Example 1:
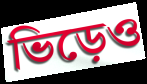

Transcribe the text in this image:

ভিড়েও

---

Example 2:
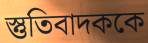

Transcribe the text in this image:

স্তুতিবাদককে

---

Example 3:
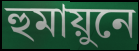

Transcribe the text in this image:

হুমায়ুনে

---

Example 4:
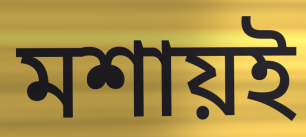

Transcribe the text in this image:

মশায়ই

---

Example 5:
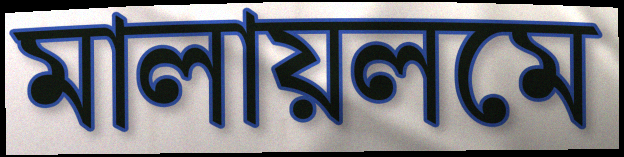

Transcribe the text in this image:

মালায়লমে